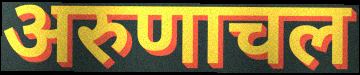
अरुणाचल